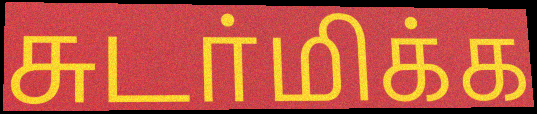
சுடர்மிக்க